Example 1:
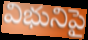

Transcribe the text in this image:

విభునిపై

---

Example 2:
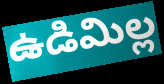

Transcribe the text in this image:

ఉడిమిల్ల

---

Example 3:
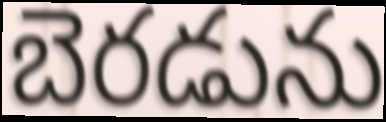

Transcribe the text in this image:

బెరడును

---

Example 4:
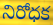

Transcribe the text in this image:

నిరోధక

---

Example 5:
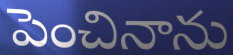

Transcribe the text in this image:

పెంచినాను